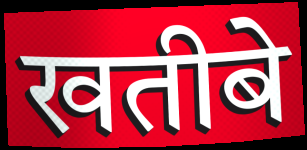
खतीबे